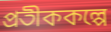
প্রতীককল্পে